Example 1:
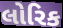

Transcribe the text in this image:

લોરિક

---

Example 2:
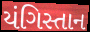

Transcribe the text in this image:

યંગિસ્તાન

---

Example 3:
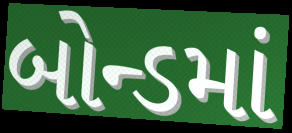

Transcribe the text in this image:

બોન્ડમાં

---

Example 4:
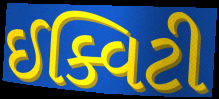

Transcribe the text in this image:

ઈક્વિટી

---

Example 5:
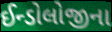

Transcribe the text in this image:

ઈન્ડોલોજીના